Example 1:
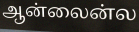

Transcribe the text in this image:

ஆன்லைன்ல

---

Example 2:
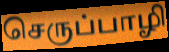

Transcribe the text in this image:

செருப்பாழி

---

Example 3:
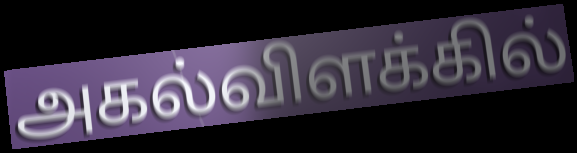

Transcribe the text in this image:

அகல்விளக்கில்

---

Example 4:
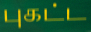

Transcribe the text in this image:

புகட்ட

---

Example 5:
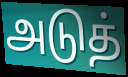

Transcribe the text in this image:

அடுத்